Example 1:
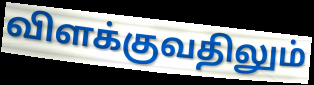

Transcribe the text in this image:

விளக்குவதிலும்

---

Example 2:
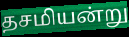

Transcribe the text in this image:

தசமியன்று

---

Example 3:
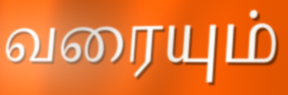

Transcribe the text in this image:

வரையும்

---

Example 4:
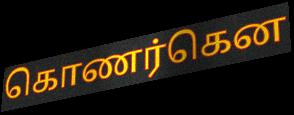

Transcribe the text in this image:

கொணர்கென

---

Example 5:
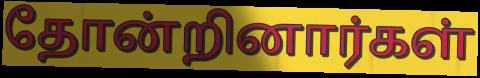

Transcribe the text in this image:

தோன்றினார்கள்